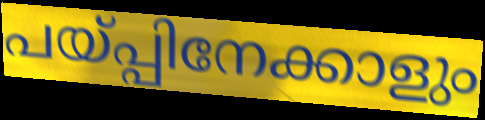
പയ്പ്പിനേക്കാളും